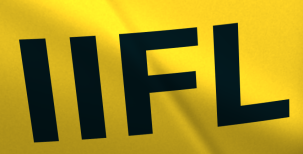
IIFL